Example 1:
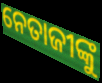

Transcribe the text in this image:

ନେତାଜୀଙ୍କୁ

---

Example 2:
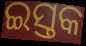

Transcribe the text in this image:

ଇସ୍ତକ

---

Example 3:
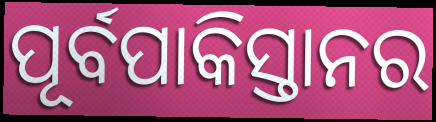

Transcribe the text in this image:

ପୂର୍ବପାକିସ୍ତାନର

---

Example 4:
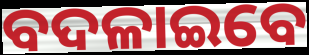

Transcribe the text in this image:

ବଦଳାଇବେ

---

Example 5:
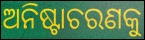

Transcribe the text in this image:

ଅନିଷ୍ଟାଚରଣକୁ